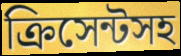
ক্রিসেন্টসহ